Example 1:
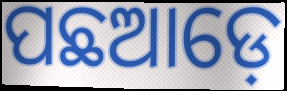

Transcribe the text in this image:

ପଛଆଡ଼େ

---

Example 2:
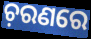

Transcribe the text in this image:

ଚ଼ରଣରେ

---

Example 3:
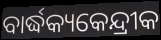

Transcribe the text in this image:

ବାର୍ଦ୍ଧକ୍ୟକେନ୍ଦ୍ରୀକ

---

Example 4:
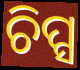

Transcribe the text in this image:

ଚିପ୍ସ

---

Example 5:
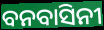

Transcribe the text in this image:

ବନବାସିନୀ